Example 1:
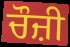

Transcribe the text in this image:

ਚੌਜ਼ੀ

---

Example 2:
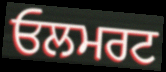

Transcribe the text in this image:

ਓਲਮਰਟ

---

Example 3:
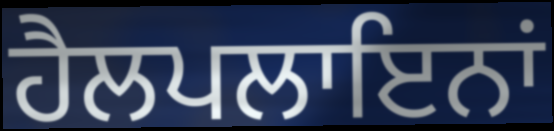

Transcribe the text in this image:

ਹੈਲਪਲਾਇਨਾਂ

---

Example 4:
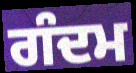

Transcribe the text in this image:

ਗੰਦਮ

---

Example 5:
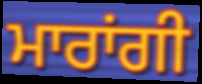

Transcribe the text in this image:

ਮਾਰਾਂਗੀ